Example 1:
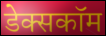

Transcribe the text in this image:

डेक्सकॉम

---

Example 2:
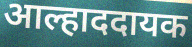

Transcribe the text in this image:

आल्हाददायक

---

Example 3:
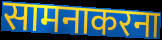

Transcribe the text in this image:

सामनाकरना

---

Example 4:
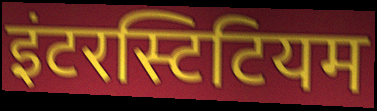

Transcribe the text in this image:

इंटरस्टिटियम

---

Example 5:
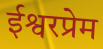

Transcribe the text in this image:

ईश्वरप्रेम